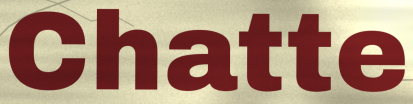
Chatte